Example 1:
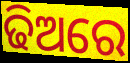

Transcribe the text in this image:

ଢିଅରେ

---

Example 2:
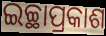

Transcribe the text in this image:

ଇଚ୍ଛାପ୍ରକାଶ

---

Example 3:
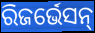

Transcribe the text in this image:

ରିଜର୍ଭେସନ୍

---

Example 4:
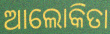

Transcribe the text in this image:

ଆଲୋକିତା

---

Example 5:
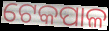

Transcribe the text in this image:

ଟେକପାଳ